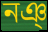
নঞ্